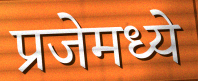
प्रजेमध्ये